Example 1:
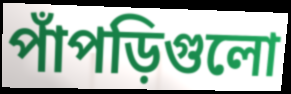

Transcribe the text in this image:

পাঁপড়িগুলো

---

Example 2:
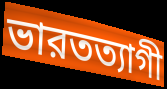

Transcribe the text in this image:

ভারতত্যাগী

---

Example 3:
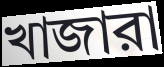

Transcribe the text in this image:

খাজারা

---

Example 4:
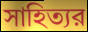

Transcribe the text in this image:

সাহিত্যর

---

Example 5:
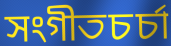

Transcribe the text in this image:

সংগীতচর্চা